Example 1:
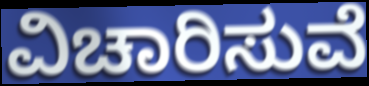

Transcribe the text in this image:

ವಿಚಾರಿಸುವೆ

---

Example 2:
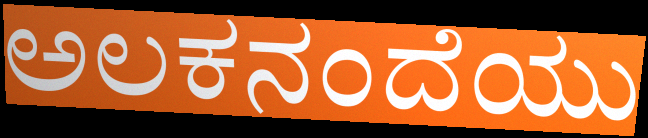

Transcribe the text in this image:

ಅಲಕನಂದೆಯು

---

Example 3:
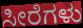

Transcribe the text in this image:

ಸೀರೆಗಳು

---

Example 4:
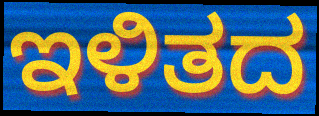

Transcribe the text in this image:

ಇಳಿತದ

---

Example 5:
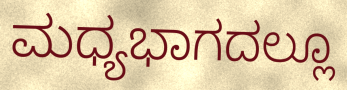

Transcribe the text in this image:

ಮಧ್ಯಭಾಗದಲ್ಲೂ